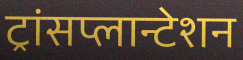
ट्रांसप्लान्टेशन